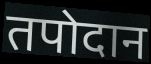
तपोदान